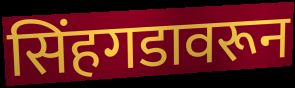
सिंहगडावरून